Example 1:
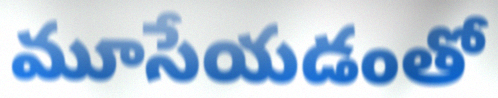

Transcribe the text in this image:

మూసేయడంతో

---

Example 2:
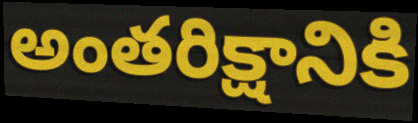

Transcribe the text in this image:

అంతరిక్షానికి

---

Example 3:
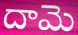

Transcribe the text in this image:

దామె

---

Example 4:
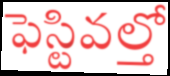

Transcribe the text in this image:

ఫెస్టివల్తో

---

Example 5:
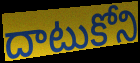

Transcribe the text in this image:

దాటుకోని